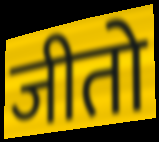
जीतो